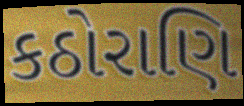
કઠોરાણિ